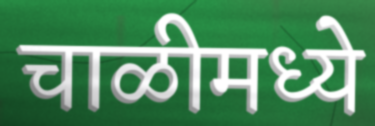
चाळीमध्ये